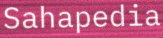
Sahapedia